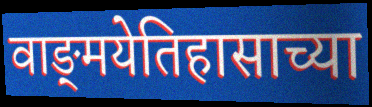
वाङ्‌मयेतिहासाच्या